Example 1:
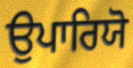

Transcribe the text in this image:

ਉਪਾਰਿਯੋ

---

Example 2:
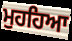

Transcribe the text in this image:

ਮੁਹਹਿਆ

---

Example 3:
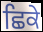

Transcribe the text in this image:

ਛਿਕੇ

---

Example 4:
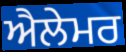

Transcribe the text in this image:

ਐਲੇਮਰ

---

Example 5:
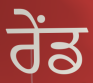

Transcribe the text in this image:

ਰੇਂਡ